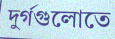
দুর্গগুলোতে